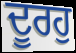
ਦੂਰਹੁ